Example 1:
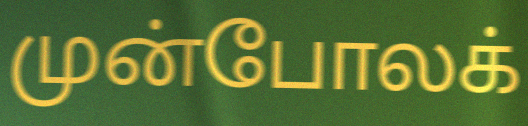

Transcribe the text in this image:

முன்போலக்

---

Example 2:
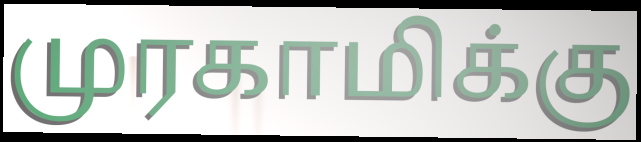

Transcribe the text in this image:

முரகாமிக்கு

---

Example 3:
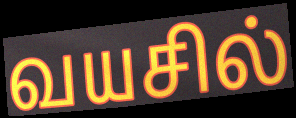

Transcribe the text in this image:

வயசில்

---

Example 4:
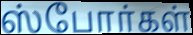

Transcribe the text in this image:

ஸ்போர்கள்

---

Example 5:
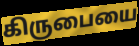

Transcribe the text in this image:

கிருபையை